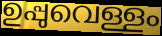
ഉപ്പുവെള്ളം